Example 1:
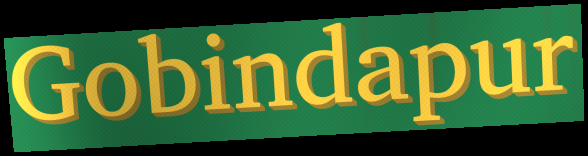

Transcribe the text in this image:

Gobindapur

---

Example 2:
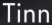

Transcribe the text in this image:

Tinn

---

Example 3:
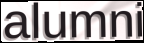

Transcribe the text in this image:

alumni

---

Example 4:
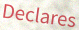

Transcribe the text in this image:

Declares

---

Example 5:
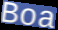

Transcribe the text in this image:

Boa